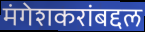
मंगेशकरांबद्दल